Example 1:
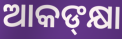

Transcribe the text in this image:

ଆକଙ୍‍କ୍ଷା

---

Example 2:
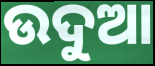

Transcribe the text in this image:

ଉଦୁଆ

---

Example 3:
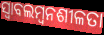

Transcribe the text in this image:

ସ୍ୱାବଲମ୍ବନଶୀଳତା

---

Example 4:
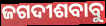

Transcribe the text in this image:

ଜଗଦୀଶବାବୁ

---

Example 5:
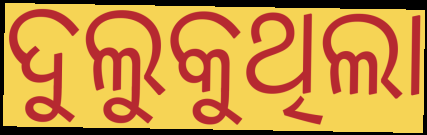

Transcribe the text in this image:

ଦୁଲୁକୁଥିଲା